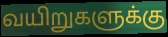
வயிறுகளுக்கு